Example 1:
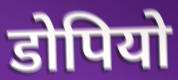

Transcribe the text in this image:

डोपियो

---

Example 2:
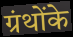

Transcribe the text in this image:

ग्रंथोंके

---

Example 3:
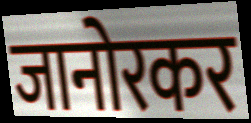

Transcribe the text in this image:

जानोरकर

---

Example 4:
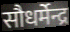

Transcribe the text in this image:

सौधर्मेन्द्र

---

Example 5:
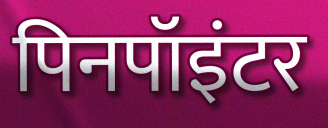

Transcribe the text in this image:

पिनपॉइंटर